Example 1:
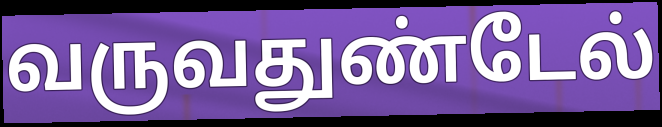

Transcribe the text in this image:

வருவதுண்டேல்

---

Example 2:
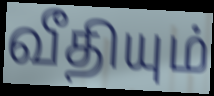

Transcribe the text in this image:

வீதியும்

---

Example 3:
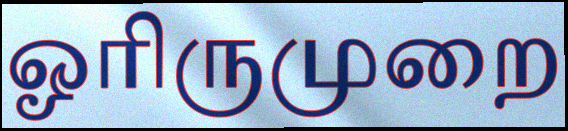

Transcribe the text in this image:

ஓரிருமுறை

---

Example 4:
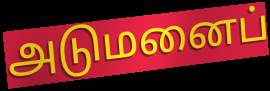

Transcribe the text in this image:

அடுமனைப்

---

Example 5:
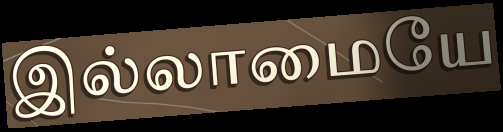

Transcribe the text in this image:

இல்லாமையே